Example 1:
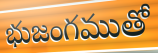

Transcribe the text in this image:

భుజంగముతో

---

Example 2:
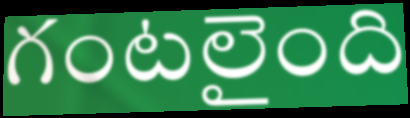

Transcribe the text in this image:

గంటలైంది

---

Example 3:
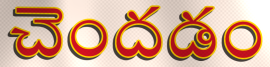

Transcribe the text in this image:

చెందడం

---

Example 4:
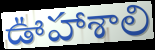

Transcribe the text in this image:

ఊహాశాలి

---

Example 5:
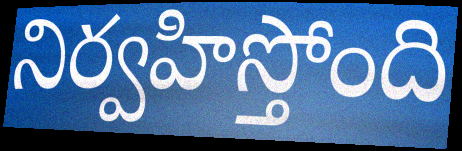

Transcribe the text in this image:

నిర్వహిస్తోంది